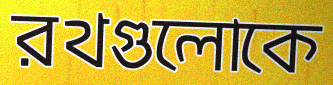
রথগুলোকে